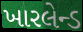
ખારલેન્ડ